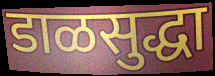
डाळसुद्धा